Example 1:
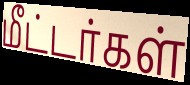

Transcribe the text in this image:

மீட்டர்கள்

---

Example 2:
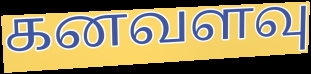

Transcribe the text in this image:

கனவளவு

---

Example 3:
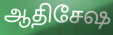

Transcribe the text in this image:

ஆதிசேஷ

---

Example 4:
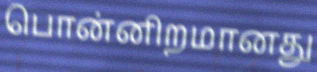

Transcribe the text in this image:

பொன்னிறமானது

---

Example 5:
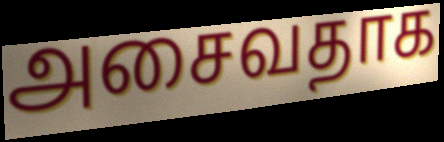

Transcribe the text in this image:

அசைவதாக